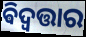
ଵିଦ୍ବତ୍ତାର